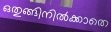
ഒതുങ്ങിനിൽക്കാതെ